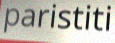
paristiti